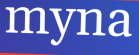
myna